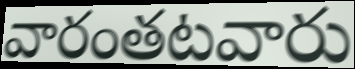
వారంతటవారు